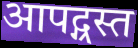
आपद्ग्रस्त